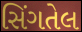
સિંગતેલ